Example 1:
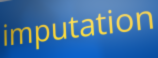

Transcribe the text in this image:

imputation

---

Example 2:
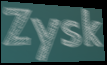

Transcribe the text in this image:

Zysk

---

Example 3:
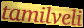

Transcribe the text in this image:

tamilveli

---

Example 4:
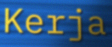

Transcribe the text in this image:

Kerja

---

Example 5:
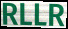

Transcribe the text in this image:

RLLR